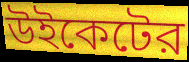
উইকেটের